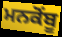
ਮਨਕੋਂਬੂ